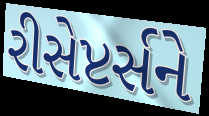
રીસેપ્ટર્સને